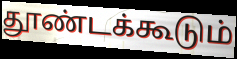
தூண்டக்கூடும்